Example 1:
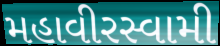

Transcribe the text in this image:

મહાવીરસ્વામી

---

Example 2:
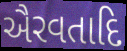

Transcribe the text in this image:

ઐરવતાદિ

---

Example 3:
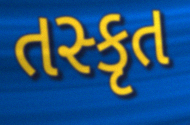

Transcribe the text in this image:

તસ્કૃત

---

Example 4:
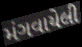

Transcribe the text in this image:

મંગવાયેલી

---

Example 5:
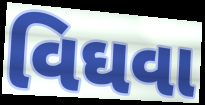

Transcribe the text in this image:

વિઘવા